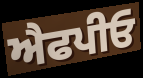
ਐਫਪੀਓ